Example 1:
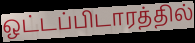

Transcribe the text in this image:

ஒட்டப்பிடாரத்தில்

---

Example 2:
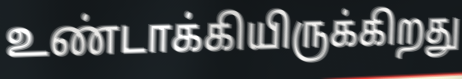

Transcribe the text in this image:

உண்டாக்கியிருக்கிறது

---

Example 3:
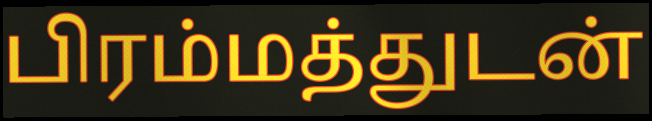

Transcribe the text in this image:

பிரம்மத்துடன்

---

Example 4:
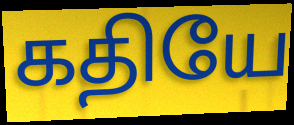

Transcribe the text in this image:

கதியே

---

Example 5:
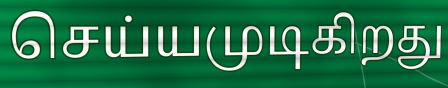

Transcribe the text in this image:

செய்யமுடிகிறது